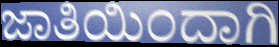
ಜಾತಿಯಿಂದಾಗಿ